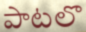
పాటలొ